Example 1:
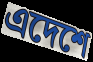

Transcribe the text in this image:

এদেশে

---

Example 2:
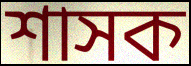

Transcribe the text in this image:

শাসক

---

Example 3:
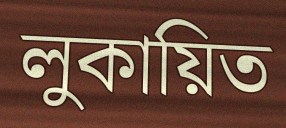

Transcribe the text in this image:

লুকায়িত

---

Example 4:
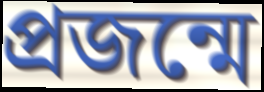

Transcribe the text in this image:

প্রজন্মে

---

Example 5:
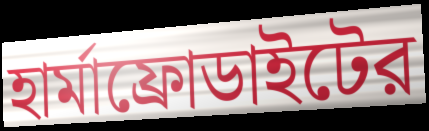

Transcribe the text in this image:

হার্মাফ্রোডাইটের